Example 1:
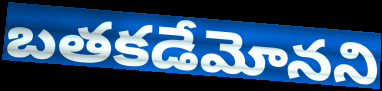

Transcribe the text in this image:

బతకడేమోనని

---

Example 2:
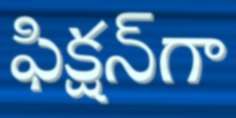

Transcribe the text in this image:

ఫిక్షన్‌గా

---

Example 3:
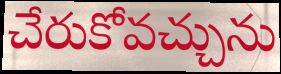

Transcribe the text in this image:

చేరుకోవచ్చును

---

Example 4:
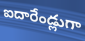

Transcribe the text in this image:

ఐదారేండ్లుగా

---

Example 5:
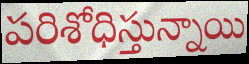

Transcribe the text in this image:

పరిశోధిస్తున్నాయి